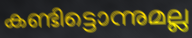
കണ്ടിട്ടൊന്നുമല്ല